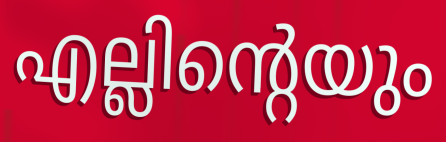
എല്ലിന്റെയും